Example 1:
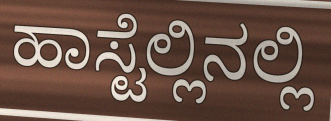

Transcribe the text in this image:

ಹಾಸ್ಟೆಲ್ಲಿನಲ್ಲಿ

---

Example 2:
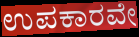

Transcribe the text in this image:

ಉಪಕಾರವೇ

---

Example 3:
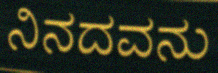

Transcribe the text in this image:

ನಿನದವನು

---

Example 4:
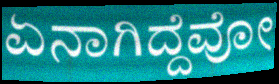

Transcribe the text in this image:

ಏನಾಗಿದ್ದೆವೋ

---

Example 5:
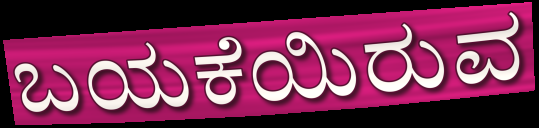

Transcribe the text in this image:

ಬಯಕೆಯಿರುವ